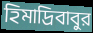
হিমাদ্রিবাবুর